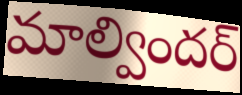
మాల్విందర్